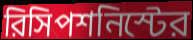
রিসিপশনিস্টের